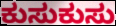
ಕುಸುಕುಸು